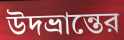
উদভ্রান্তের